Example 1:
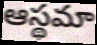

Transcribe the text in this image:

ఆస్థమా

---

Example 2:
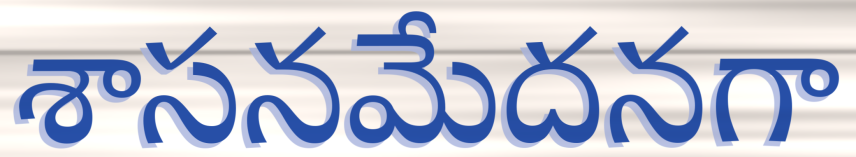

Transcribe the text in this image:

శాసనమేదనగా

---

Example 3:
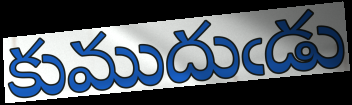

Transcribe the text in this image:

కుముదుఁడు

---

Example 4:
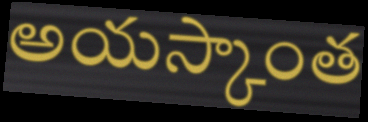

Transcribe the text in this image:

అయస్కాంత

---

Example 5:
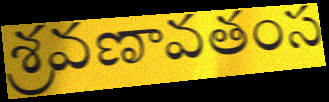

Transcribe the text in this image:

శ్రవణావతంస